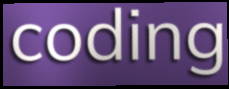
coding